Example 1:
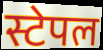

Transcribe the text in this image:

स्टेपल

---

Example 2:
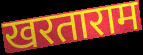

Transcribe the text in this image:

खरताराम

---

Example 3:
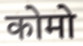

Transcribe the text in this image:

कोमो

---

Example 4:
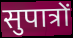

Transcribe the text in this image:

सुपात्रों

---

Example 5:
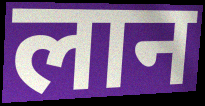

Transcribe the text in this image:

लान